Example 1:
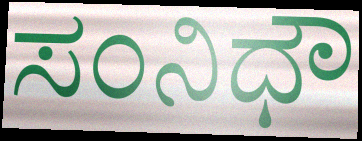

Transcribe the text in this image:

ಸಂನಿಧೌ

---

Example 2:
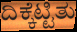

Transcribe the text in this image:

ದಿಕ್ಕೆಟ್ಟಿತು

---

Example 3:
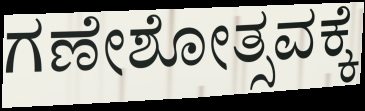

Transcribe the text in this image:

ಗಣೇಶೋತ್ಸವಕ್ಕೆ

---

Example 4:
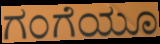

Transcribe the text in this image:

ಗಂಗೆಯೂ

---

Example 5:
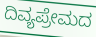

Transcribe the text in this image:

ದಿವ್ಯಪ್ರೇಮದ